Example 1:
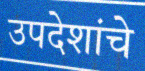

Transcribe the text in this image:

उपदेशांचे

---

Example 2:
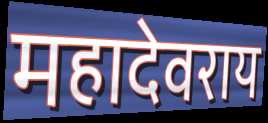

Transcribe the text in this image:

महादेवराय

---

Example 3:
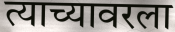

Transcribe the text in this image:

त्याच्यावरला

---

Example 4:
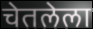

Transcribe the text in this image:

चेतलेला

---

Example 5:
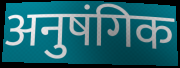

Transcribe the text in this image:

अनुषंगिक